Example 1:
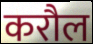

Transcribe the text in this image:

करौल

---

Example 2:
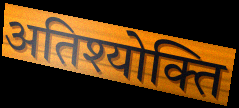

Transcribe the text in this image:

अतिश्योक्ति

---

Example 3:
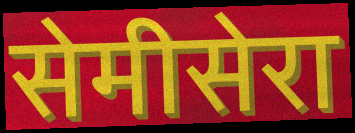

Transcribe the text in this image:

सेमीसेरा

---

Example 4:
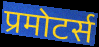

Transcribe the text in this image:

प्रमोटर्स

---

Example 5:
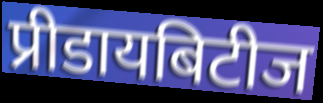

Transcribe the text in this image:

प्रीडायबिटीज